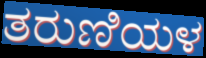
ತರುಣಿಯಳ